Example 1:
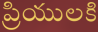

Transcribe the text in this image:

ప్రియులకి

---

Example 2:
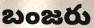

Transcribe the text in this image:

బంజరు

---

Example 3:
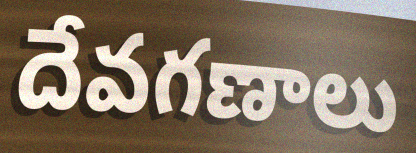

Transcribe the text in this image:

దేవగణాలు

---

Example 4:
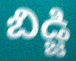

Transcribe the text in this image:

బిడ్జి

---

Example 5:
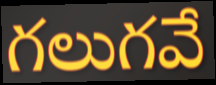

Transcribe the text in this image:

గలుగవే